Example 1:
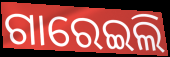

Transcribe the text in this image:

ଗାରେଇଲି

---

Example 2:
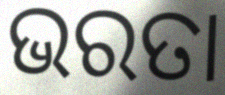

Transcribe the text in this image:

ଭରତା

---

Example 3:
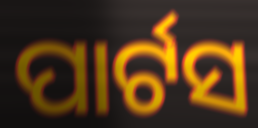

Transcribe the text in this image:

ପାର୍ଟସ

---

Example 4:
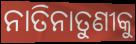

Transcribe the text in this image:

ନାତିନାତୁଣୀକୁ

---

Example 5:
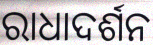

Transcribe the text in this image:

ରାଧାଦର୍ଶନ